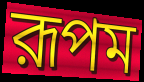
রূপম